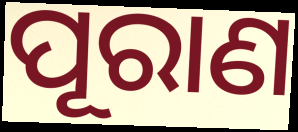
ପୂରାଣ